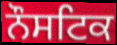
ਨੌਸਟਿਕ